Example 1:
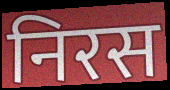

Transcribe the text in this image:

निरस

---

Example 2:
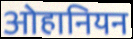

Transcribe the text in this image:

ओहानियन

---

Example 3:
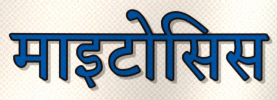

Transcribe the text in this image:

माइटोसिस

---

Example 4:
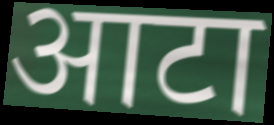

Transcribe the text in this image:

आटा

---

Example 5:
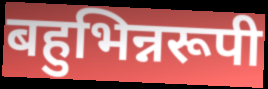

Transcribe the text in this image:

बहुभिन्नरूपी